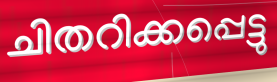
ചിതറിക്കപ്പെട്ടു